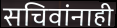
सचिवांनाही